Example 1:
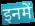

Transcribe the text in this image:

इनमें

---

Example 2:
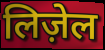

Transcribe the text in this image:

लिज़ेल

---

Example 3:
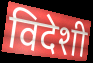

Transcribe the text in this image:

विदेशी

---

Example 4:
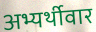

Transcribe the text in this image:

अभ्यर्थीवार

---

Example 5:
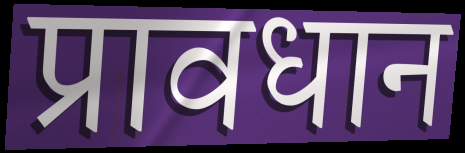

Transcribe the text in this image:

प्रावधान